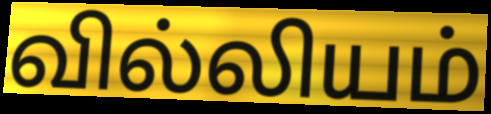
வில்லியம்